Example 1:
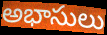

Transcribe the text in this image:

అభాసులు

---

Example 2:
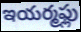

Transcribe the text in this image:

ఇయర్మఫ్లు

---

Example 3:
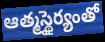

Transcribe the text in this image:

ఆత్మస్థైర్యంతో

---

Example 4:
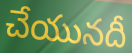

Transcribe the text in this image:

చేయునదీ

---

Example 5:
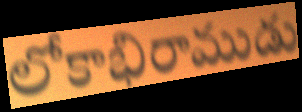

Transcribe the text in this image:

లోకాభిరాముడు